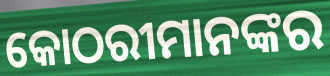
କୋଠରୀମାନଙ୍କର